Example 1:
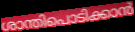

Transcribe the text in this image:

ശാന്തിപൊടിക്കാൻ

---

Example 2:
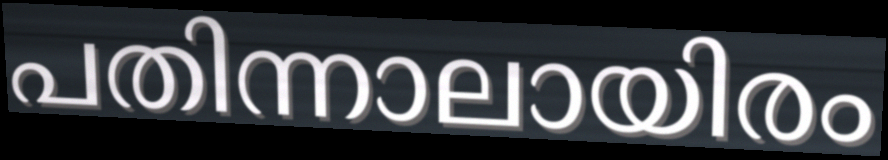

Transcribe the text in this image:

പതിന്നാലായിരം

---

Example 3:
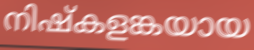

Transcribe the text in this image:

നിഷ്കളങ്കയായ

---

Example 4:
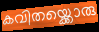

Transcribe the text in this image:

കവിതയ്ക്കൊരു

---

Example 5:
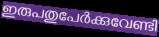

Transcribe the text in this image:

ഇരുപതുപേർക്കുവേണ്ടി